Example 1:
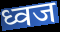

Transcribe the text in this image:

ध्वज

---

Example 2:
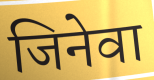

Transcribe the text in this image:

जिनेवा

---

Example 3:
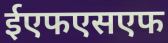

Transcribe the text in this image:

ईएफएसएफ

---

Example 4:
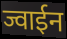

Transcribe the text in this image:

ज्वाईन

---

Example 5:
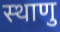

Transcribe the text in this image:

स्थाणु